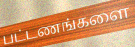
பட்டணங்களை